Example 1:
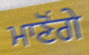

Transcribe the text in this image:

ਮਾਣੋਂਗੇ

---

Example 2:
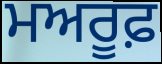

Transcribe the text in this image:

ਮਅਰੂਫ਼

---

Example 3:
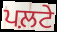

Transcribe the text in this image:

ਪਲ਼ਟੇ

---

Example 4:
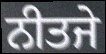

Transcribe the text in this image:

ਨੀਤਜੇ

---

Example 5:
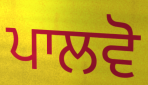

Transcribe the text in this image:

ਪਾਲਵੋ